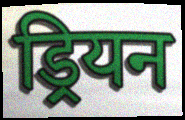
ड्रियन